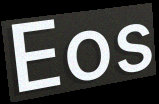
Eos